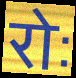
रोः